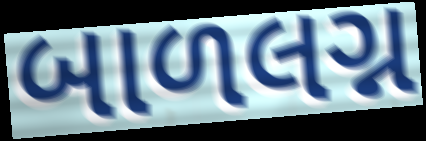
બાળલગ્ન